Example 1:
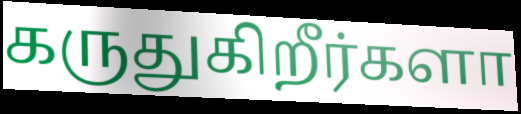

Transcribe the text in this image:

கருதுகிறீர்களா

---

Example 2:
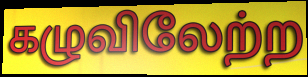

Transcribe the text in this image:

கழுவிலேற்ற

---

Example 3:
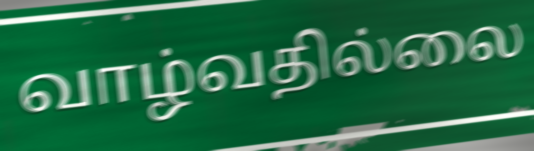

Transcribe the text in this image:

வாழ்வதில்லை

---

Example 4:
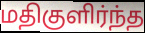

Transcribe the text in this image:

மதிகுளிர்ந்த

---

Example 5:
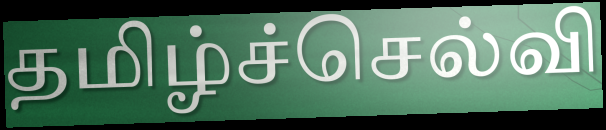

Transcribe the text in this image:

தமிழ்ச்செல்வி